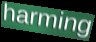
harming